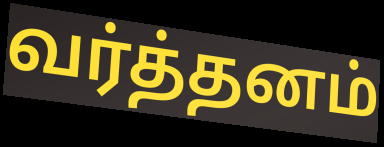
வர்த்தனம்